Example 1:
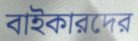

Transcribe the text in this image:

বাইকারদের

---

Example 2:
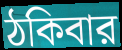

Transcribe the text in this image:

ঠকিবার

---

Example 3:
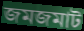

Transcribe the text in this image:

জমজমাট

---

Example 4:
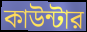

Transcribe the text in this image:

কাউন্টার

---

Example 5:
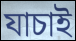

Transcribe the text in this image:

যাচাই